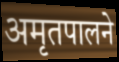
अमृतपालने